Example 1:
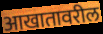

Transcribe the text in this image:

आखातावरील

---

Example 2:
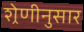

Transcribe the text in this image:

श्रेणीनुसार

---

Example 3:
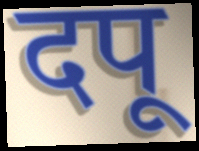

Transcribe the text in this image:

दपू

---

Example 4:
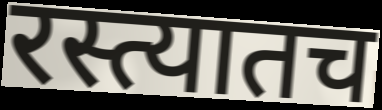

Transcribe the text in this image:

रस्त्यातच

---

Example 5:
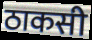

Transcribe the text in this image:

ठाकसी